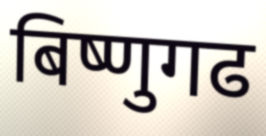
बिष्णुगढ